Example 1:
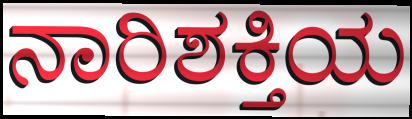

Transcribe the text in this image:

ನಾರಿಶಕ್ತಿಯ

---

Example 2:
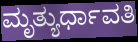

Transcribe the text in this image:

ಮೃತ್ಯುರ್ಧಾವತಿ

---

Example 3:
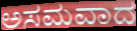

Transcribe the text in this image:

ಅಸಮವಾದ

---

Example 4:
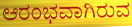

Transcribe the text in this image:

ಆರಂಭವಾಗಿರುವ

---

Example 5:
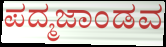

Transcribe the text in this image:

ಪದ್ಮಜಾಂಡವ